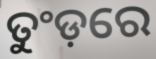
ତୁଂଡ଼ରେ